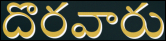
దొరవారు